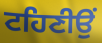
ਟਹਿਣੀਉਂ